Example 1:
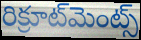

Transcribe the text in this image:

రిక్రూట్‌మెంట్స్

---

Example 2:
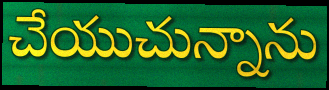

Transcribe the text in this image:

చేయుచున్నాను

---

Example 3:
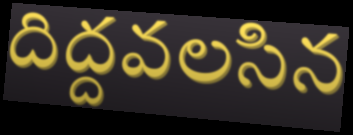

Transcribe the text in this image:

దిద్దవలసిన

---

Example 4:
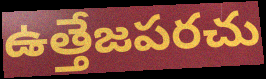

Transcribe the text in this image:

ఉత్తేజపరచు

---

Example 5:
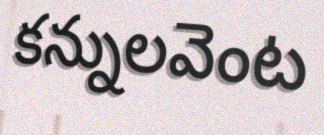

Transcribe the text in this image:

కన్నులవెంట